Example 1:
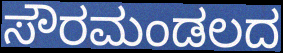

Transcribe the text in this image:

ಸೌರಮಂಡಲದ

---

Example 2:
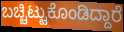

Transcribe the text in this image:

ಬಚ್ಚಿಟ್ಟುಕೊಂಡಿದ್ದಾರೆ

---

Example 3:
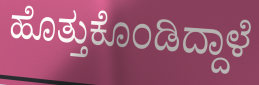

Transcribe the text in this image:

ಹೊತ್ತುಕೊಂಡಿದ್ದಾಳೆ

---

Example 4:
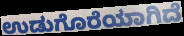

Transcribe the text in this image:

ಉಡುಗೊರೆಯಾಗಿದೆ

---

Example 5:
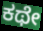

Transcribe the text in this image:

ಕಥೇ